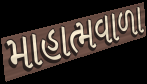
માહાત્મવાળા